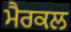
ਮੈਰਕਲ